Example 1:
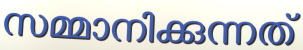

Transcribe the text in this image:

സമ്മാനിക്കുന്നത്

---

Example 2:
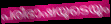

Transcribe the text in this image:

പരിഭാഷയുടെയും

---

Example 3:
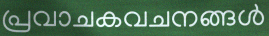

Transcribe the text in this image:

പ്രവാചകവചനങ്ങൾ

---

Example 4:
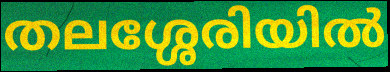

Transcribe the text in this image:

തലശ്ശേരിയിൽ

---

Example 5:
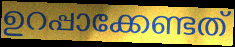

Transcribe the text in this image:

ഉറപ്പാക്കേണ്ടത്